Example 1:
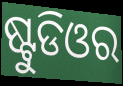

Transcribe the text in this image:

ଷ୍ଟୁଡିଓର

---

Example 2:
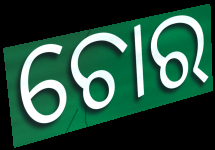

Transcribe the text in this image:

ଚୋର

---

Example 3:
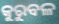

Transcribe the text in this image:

କୁରୁବଳ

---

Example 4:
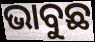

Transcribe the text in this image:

ଭାବୁଛ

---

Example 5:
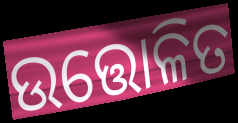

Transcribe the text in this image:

ଉତ୍ତୋଳିତ